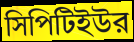
সিপিটিইউর